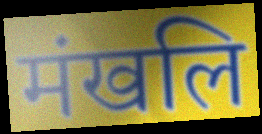
मंखलि